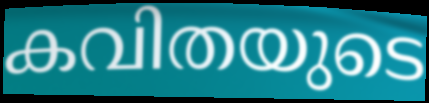
കവിതയുടെ